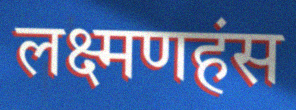
लक्ष्मणहंस